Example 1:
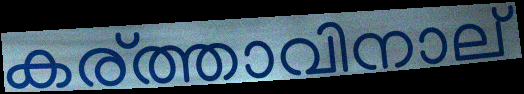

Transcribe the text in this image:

കര്ത്താവിനാല്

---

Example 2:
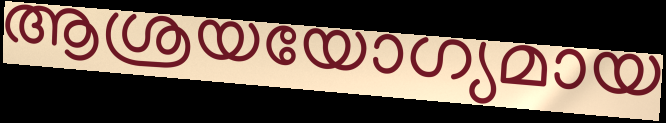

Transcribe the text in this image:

ആശ്രയയോഗ്യമായ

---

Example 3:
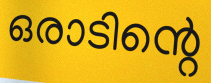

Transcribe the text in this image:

ഒരാടിന്റെ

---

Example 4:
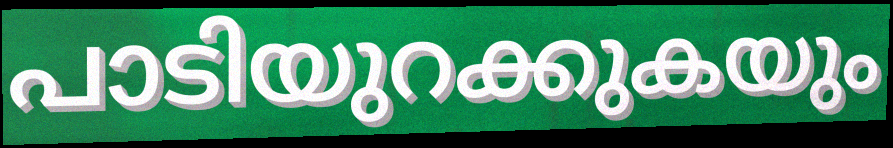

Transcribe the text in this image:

പാടിയുറക്കുകയും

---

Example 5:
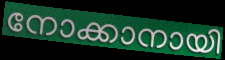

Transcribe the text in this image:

നോക്കാനായി